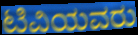
ಟಿವಿಯವರು